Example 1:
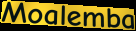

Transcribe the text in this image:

Moalemba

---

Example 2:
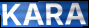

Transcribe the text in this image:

KARA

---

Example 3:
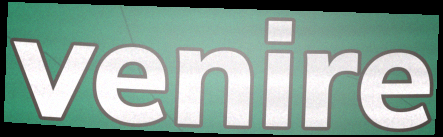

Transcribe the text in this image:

venire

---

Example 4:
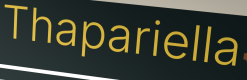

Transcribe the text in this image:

Thapariella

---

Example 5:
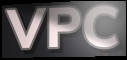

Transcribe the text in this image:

VPC